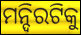
ମନ୍ଦିରଟିକୁ